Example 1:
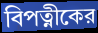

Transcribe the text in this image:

বিপত্নীকের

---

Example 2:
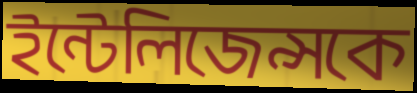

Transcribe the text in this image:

ইন্টেলিজেন্সকে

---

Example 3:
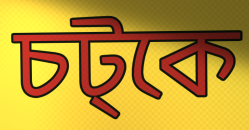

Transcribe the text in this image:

চট্‌কে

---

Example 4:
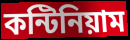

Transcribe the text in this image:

কন্টিনিয়াম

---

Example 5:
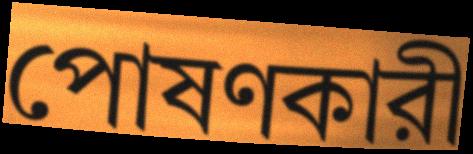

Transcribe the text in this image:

পোষণকারী